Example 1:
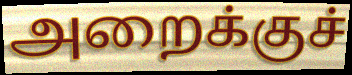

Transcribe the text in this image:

அறைக்குச்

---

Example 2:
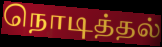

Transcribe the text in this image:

நொடித்தல்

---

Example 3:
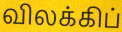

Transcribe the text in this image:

விலக்கிப்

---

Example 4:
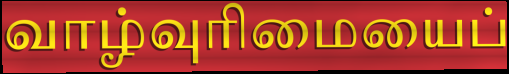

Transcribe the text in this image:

வாழ்வுரிமையைப்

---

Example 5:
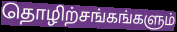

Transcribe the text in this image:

தொழிற்சங்கங்களும்